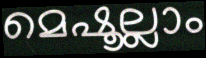
മെഷൂല്ലാം